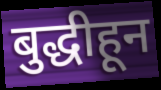
बुद्धीहून